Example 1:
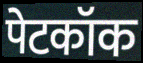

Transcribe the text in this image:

पेटकॉक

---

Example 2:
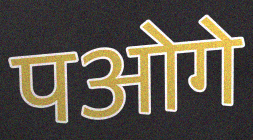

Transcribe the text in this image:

पओगे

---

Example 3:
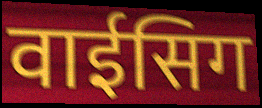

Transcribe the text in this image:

वाईसिग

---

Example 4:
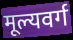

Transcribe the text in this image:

मूल्यवर्ग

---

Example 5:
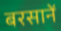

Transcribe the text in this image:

बरसानें